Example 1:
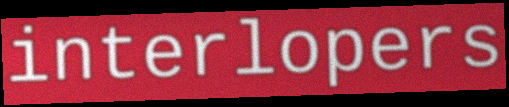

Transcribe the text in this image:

interlopers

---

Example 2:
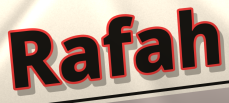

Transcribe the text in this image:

Rafah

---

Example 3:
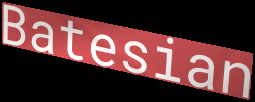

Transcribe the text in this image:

Batesian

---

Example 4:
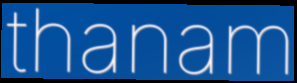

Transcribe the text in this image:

thanam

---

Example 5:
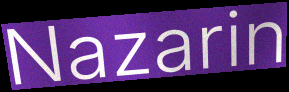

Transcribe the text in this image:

Nazarin